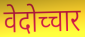
वेदोच्चार